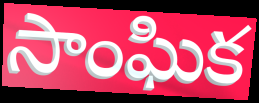
సాంఘిక